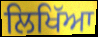
ਲਿਖਿੱਆ